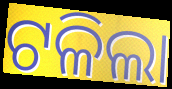
ଟଳିଲା